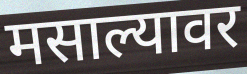
मसाल्यावर